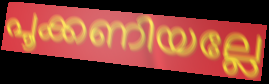
പൂക്കണിയല്ലേ